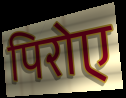
पिरोए